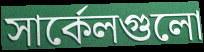
সার্কেলগুলো